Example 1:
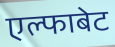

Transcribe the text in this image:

एल्फाबेट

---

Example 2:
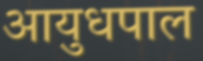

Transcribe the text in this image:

आयुधपाल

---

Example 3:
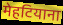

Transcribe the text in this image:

मेहटियाना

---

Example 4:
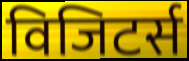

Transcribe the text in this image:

विजिटर्स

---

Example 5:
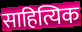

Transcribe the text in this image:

साहित्यिक